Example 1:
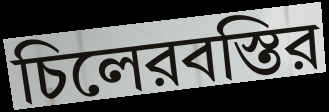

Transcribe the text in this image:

চিলেরবস্তির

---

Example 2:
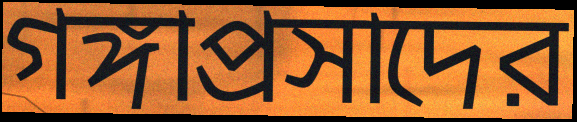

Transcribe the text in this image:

গঙ্গাপ্রসাদের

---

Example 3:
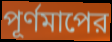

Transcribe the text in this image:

পূর্ণমাপের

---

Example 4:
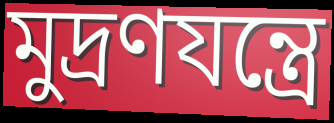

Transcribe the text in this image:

মুদ্রণযন্ত্রে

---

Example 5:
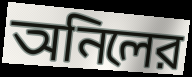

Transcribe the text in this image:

অনিলের